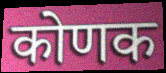
कोणक